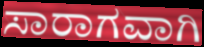
ಸಾರಾಗವಾಗಿ